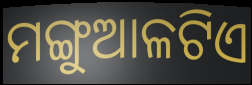
ମଙ୍ଗୁଆଳଟିଏ